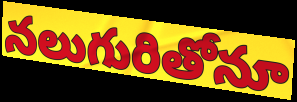
నలుగురితోనూ